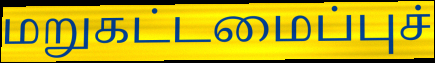
மறுகட்டமைப்புச்